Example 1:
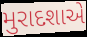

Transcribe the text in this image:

મુરાદશાએ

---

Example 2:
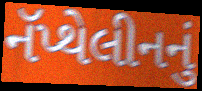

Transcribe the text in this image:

નૅપ્થેલીનનું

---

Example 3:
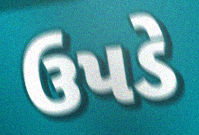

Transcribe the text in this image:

ઉપડે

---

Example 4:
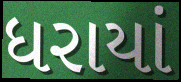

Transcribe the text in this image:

ધરાયાં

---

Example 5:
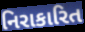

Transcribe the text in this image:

નિરાકારિત